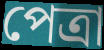
পেত্রা